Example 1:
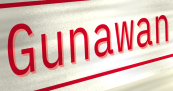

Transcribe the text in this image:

Gunawan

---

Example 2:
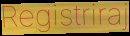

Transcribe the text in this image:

Registriraj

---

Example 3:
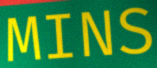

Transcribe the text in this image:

MINS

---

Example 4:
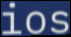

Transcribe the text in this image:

ios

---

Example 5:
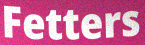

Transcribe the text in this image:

Fetters